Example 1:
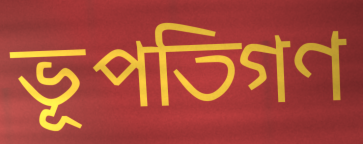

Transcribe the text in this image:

ভূপতিগণ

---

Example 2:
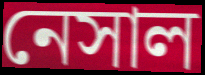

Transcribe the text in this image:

নেসাল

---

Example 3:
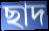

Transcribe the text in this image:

ছাদ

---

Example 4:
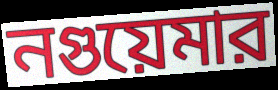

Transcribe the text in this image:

নগুয়েমার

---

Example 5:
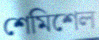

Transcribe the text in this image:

শেমিশেল